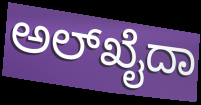
ಅಲ್‌ಖೈದಾ